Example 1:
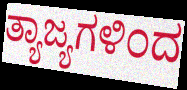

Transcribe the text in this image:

ತ್ಯಾಜ್ಯಗಳಿಂದ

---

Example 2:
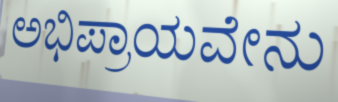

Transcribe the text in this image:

ಅಭಿಪ್ರಾಯವೇನು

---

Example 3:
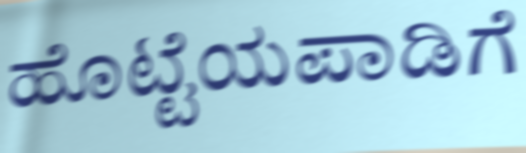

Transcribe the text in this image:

ಹೊಟ್ಟೆಯಪಾಡಿಗೆ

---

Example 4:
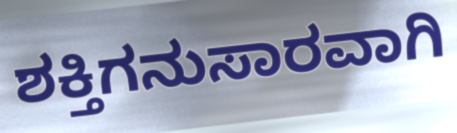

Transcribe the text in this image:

ಶಕ್ತಿಗನುಸಾರವಾಗಿ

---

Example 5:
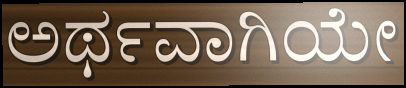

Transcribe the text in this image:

ಅರ್ಥವಾಗಿಯೇ